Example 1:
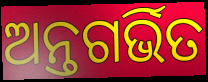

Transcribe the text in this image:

ଅନ୍ତଗର୍ଭିତ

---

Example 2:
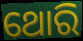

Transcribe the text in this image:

ଥୋରି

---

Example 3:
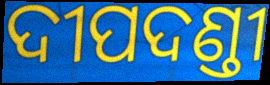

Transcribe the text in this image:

ଦୀପଦଣ୍ଡୀ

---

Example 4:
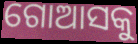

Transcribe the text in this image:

ଗୋଆସକୁ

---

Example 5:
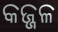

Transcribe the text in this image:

କଜ୍ଜଳ